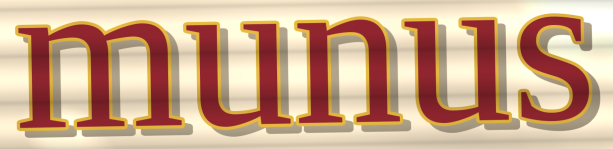
munus